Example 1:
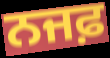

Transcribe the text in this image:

ਨਜਫ਼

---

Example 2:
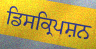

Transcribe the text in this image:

ਡਿਸਕ੍ਰਿਪਸ਼ਨ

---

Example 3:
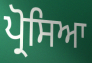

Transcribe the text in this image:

ਪ੍ਰੋਸਿਆ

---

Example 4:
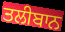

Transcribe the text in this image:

ਤਲੀਬਾਨ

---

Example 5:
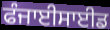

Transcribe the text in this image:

ਫੰਜਾਈਸਾਈਡ